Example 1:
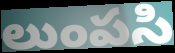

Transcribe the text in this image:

లుంపసి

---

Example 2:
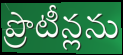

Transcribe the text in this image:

ప్రొటీన్లను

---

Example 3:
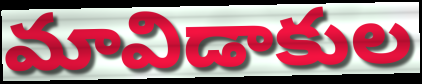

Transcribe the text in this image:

మావిడాకుల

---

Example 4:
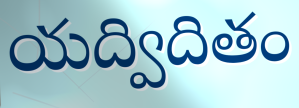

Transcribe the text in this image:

యద్విదితం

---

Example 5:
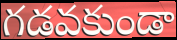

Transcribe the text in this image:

గడవకుండా